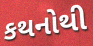
કથનોથી